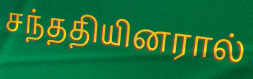
சந்ததியினரால்